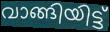
വാങ്ങിയിട്ട്